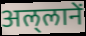
अल्लानें